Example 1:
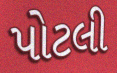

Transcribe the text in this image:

પોટલી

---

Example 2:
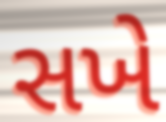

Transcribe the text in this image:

સખે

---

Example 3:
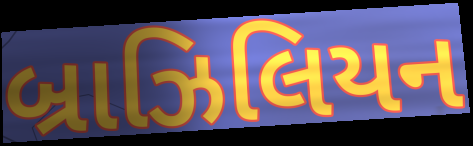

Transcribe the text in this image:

બ્રાઝિલિયન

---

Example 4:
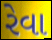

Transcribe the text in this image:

રેવા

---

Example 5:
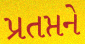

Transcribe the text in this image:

પ્રતપ્તને